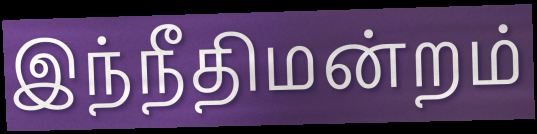
இந்நீதிமன்றம்